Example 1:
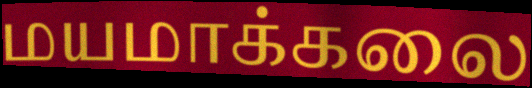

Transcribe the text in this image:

மயமாக்கலை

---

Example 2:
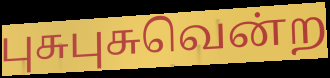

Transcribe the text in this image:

புசுபுசுவென்ற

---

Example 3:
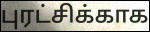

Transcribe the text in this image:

புரட்சிக்காக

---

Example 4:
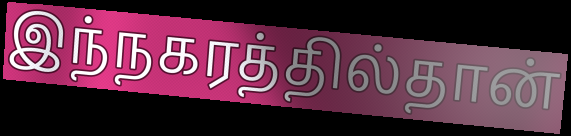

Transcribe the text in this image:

இந்நகரத்தில்தான்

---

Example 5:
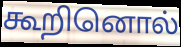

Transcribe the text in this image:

கூறினொல்